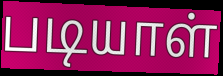
படியாள்